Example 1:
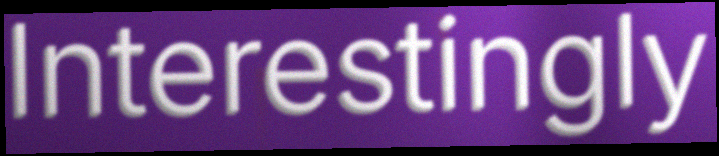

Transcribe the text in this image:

Interestingly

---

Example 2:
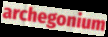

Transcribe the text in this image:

archegonium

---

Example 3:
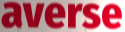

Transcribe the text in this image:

averse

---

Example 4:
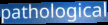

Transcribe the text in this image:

pathological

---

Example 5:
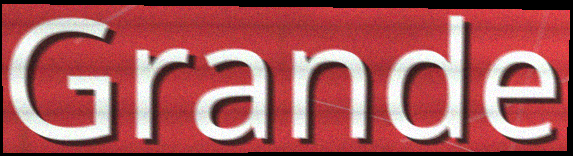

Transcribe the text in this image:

Grande